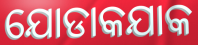
ଯୋଡାକଯାକ